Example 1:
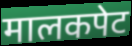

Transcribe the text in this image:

मालकपेट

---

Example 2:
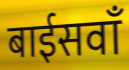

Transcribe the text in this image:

बाईसवाँ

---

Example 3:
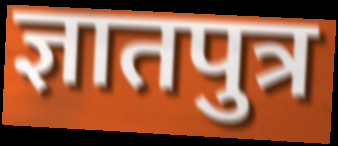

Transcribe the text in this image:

ज्ञातपुत्र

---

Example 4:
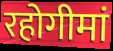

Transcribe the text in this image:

रहोगीमां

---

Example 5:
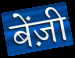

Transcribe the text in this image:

बेंज़ी